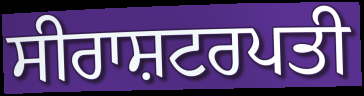
ਸੀਰਾਸ਼ਟਰਪਤੀ